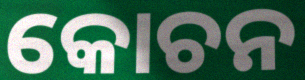
କୋଚନ